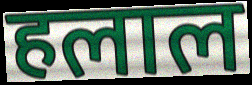
हलाल